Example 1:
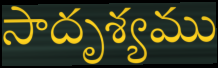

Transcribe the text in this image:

సాదృశ్యము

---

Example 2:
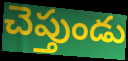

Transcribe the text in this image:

చెప్తుండు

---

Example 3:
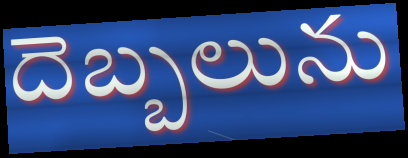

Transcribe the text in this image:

దెబ్బలును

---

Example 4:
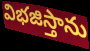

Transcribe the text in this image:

విభజిస్తాను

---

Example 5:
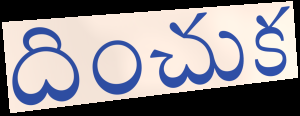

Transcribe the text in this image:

దించుక